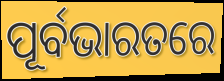
ପୂର୍ବଭାରତରେ